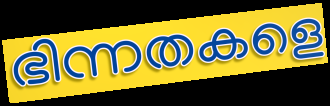
ഭിന്നതകളെ